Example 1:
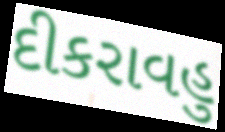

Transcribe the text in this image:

દીકરાવહુ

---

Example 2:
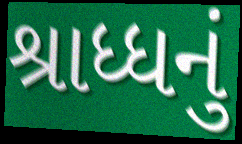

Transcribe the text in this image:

શ્રાધ્ધનું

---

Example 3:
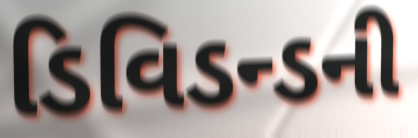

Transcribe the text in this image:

ડિવિડન્ડની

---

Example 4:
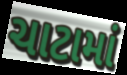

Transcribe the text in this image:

ચાટામાં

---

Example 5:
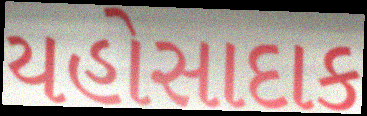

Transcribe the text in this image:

યહોસાદાક